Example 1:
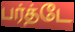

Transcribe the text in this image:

பர்த்டே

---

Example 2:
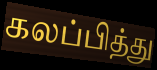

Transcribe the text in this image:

கலப்பித்து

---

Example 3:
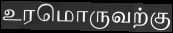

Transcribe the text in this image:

உரமொருவற்கு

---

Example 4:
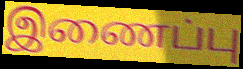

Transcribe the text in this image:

இணைப்பு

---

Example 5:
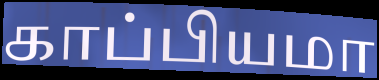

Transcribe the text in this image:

காப்பியமா